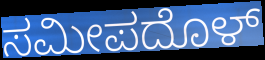
ಸಮೀಪದೊಳ್